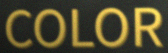
COLOR